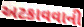
અટકાવવાની